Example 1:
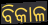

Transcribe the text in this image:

ବିକାଳ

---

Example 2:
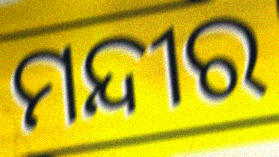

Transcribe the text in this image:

ମନ୍ଦୀର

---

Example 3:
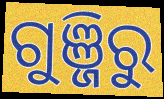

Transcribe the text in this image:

ଗୁଞ୍ଜିରୁ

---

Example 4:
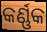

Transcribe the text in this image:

କର୍ଣ୍ଣକ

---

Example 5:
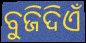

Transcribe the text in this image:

ବୁଜିଦିଏଁ